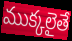
ముక్కలైతే